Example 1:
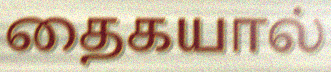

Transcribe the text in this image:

தைகயால்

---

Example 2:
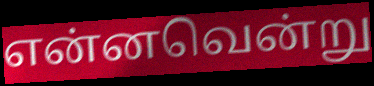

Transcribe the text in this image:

என்னவென்று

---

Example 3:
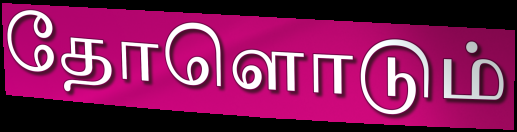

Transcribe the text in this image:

தோளொடும்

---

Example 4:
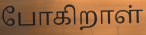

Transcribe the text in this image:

போகிறாள்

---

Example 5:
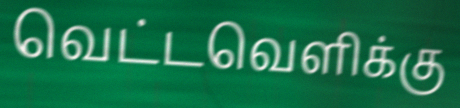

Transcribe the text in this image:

வெட்டவெளிக்கு